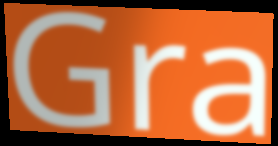
Gra